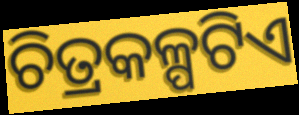
ଚିତ୍ରକଳ୍ପଟିଏ